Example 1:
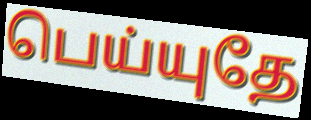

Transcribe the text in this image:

பெய்யுதே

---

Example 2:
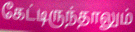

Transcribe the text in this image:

கேட்டிருந்தாலும்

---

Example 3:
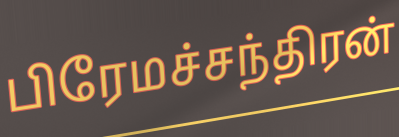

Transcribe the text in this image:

பிரேமச்சந்திரன்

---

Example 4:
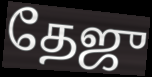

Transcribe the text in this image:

தேஜு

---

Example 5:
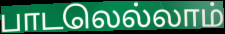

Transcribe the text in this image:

பாடலெல்லாம்